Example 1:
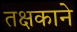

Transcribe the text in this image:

तक्षकाने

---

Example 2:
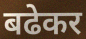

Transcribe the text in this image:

बढेकर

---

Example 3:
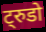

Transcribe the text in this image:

ट्रुडो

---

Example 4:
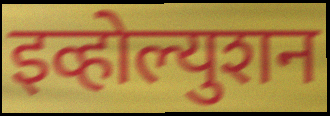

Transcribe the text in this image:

इव्होल्युशन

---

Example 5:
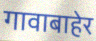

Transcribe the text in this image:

गावाबाहेर